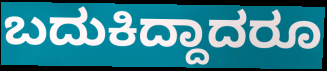
ಬದುಕಿದ್ದಾದರೂ